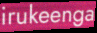
irukeenga